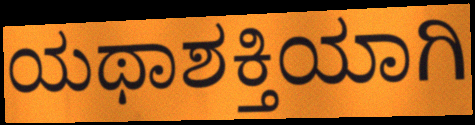
ಯಥಾಶಕ್ತಿಯಾಗಿ